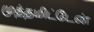
முத்தமிட்டேன்